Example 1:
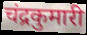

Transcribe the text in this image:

चंद्रकुमारी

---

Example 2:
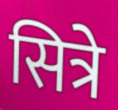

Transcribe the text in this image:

सित्रे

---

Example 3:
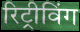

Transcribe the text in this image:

रिट्रीविंग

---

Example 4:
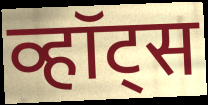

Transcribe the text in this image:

व्हॉट्स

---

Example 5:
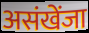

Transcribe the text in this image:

असंखेंजा